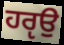
ਹਰੵਉ